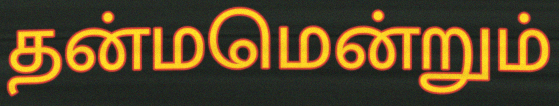
தன்மமென்றும்